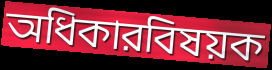
অধিকারবিষয়ক